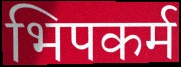
भिपकर्म